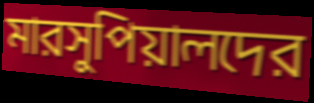
মারসুপিয়ালদের